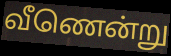
வீணென்று